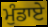
ਮੁੰਡਾਏ